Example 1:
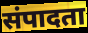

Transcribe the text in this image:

संपादता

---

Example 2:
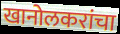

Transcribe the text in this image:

खानोलकरांचा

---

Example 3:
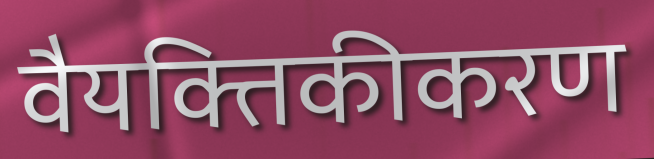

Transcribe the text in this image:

वैयक्तिकीकरण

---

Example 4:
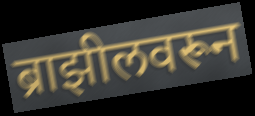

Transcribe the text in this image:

ब्राझीलवरून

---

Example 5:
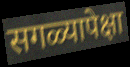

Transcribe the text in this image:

सगळ्यापेक्षा